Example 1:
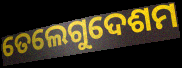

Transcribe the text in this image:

ତେଲେଗୁଦେଶମ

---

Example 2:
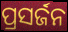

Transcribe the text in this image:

ପ୍ରସର୍ଜନ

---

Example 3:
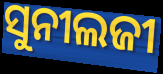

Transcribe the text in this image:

ସୁନୀଲଜୀ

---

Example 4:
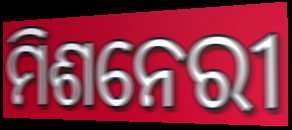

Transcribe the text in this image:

ମିଶନେରୀ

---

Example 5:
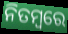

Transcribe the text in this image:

ନିତମ୍ବରେ